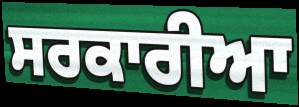
ਸਰਕਾਰੀਆ